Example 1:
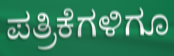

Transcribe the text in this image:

ಪತ್ರಿಕೆಗಳಿಗೂ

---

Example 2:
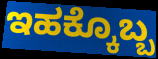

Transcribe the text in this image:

ಇಹಕ್ಕೊಬ್ಬ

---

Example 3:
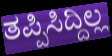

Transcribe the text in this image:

ತಪ್ಪಿಸಿದ್ದಿಲ್ಲ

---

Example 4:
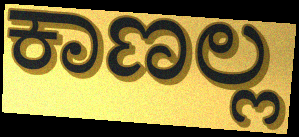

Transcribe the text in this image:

ಕಾಣಲ್ಲ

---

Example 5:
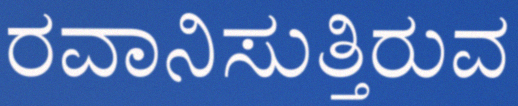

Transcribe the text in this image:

ರವಾನಿಸುತ್ತಿರುವ